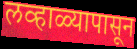
लव्हाळ्यापासून